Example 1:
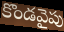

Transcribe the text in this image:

కొండవైపు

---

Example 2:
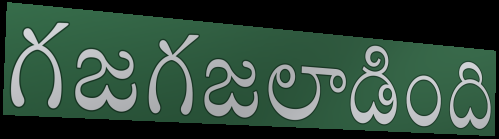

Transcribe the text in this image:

గజగజలాడింది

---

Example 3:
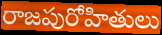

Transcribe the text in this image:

రాజపురోహితులు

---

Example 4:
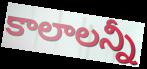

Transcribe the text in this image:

కాలాలన్నీ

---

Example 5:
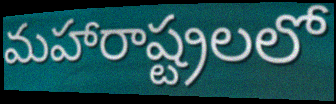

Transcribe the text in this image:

మహారాష్ట్రలలో